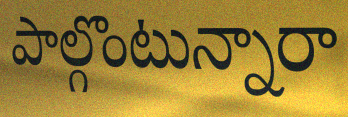
పాల్గొంటున్నారా